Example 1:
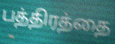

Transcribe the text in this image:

பத்திரத்தை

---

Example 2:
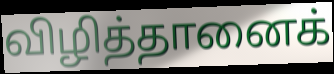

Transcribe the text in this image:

விழித்தானைக்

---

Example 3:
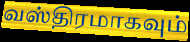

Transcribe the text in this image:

வஸ்திரமாகவும்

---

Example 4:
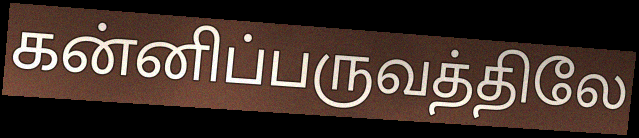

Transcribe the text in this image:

கன்னிப்பருவத்திலே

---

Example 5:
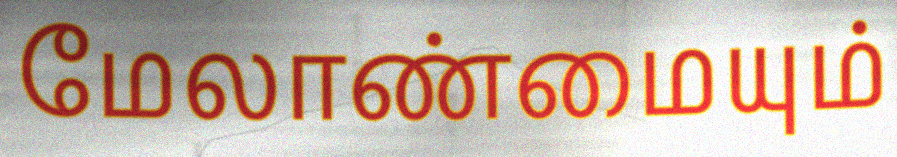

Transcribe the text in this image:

மேலாண்மையும்